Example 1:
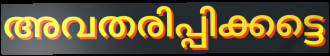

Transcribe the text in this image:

അവതരിപ്പിക്കട്ടെ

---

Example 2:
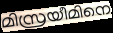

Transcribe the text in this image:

മിസ്രയീമിനെ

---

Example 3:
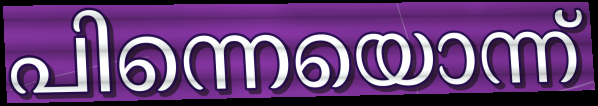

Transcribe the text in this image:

പിന്നെയൊന്ന്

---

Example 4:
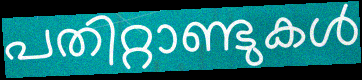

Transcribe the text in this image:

പതിറ്റാണ്ടുകൾ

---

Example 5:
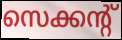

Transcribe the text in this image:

സെക്കന്റ്